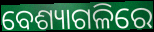
ବେଶ୍ୟାଗଳିରେ